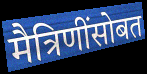
मैत्रिणींसोबत